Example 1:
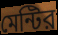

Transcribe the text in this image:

মেন্টির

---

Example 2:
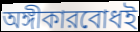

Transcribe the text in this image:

অঙ্গীকারবোধই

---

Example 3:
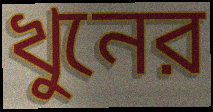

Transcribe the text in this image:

খুনের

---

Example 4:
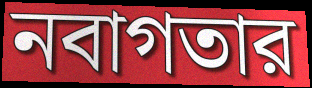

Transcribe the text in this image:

নবাগতার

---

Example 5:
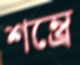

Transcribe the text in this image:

শম্ব্রে